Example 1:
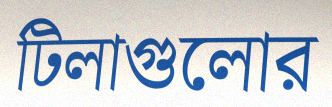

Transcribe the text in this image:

টিলাগুলোর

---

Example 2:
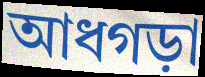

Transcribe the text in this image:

আধগড়া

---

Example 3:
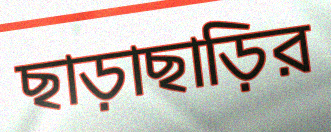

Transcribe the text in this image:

ছাড়াছাড়ির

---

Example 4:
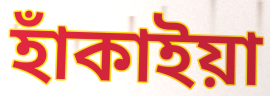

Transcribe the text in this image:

হাঁকাইয়া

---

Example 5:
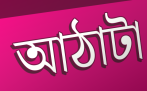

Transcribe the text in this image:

আঠাটা